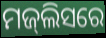
ମଜ୍‍ଲିସରେ